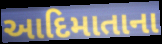
આદિમાતાના